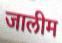
जालीम